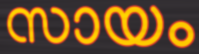
സായം